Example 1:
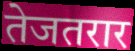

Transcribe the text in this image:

तेजतरार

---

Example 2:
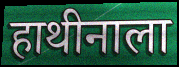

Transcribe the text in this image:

हाथीनाला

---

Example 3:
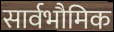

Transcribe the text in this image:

सार्वभौमिक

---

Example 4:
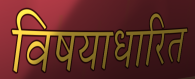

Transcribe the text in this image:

विषयाधारित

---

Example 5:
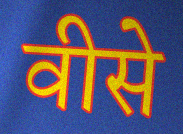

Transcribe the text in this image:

वीसे